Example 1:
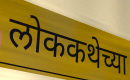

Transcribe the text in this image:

लोककथेच्या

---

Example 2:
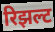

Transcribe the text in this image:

रिझल्ट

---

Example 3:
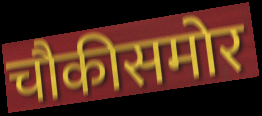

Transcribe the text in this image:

चौकीसमोर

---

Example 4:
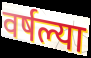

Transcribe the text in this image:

वर्षल्या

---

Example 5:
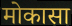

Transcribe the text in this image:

मोकासा